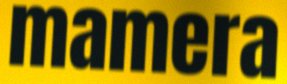
mamera